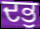
ਦਭੁ